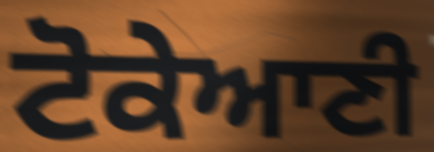
ਟੋਕੇਆਣੀ